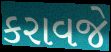
કરાવજે